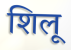
शिलू